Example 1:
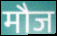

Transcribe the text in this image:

मौज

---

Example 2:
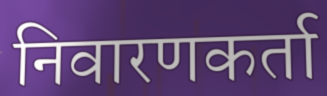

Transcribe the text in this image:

निवारणकर्ता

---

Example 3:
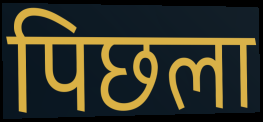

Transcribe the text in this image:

पिछला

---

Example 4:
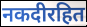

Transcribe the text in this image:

नकदीरहित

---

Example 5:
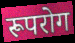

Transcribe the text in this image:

रूपरोग